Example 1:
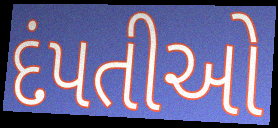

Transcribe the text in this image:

દંપતીઓ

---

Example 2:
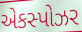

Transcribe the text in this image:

એકસ્પોઝર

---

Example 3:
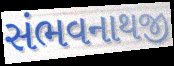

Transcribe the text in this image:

સંભવનાથજી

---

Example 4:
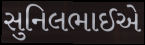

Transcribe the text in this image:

સુનિલભાઈએ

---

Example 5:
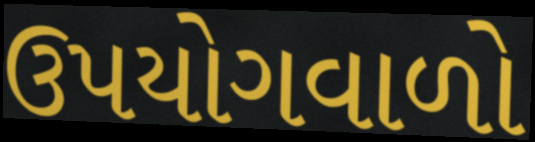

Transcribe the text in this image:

ઉપયોગવાળો